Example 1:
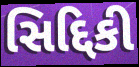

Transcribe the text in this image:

સિદ્દિકી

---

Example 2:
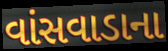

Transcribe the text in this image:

વાંસવાડાના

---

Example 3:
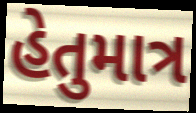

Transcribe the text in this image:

હેતુમાત્ર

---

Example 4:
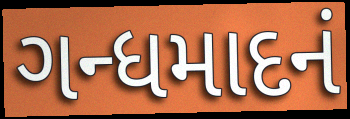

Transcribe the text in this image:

ગન્ધમાદનં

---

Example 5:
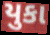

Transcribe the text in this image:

યુકા